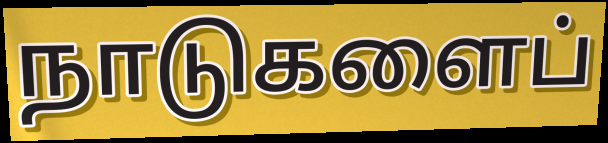
நாடுகளைப்